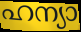
ഹന്യാ